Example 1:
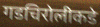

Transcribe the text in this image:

गडचिरोलीकडे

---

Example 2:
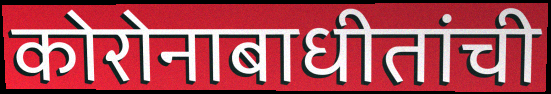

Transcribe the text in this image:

कोरोनाबाधीतांची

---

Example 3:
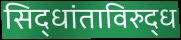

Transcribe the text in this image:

सिद्धांताविरुद्ध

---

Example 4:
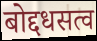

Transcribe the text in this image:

बोद्दधसत्व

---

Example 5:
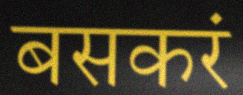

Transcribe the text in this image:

बसकरं